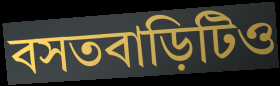
বসতবাড়িটিও